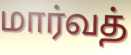
மார்வத்